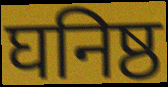
घनिष्ठ